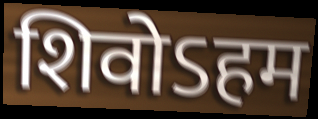
शिवोऽहम